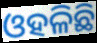
ଓହଳିଛି